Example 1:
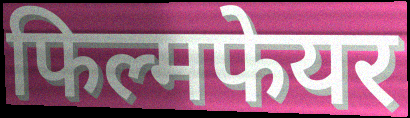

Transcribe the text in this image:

फिल्मफेयर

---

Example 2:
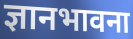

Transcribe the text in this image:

ज्ञानभावना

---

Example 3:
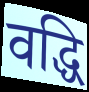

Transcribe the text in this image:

वद्धि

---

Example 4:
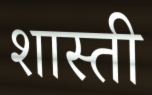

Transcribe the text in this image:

शास्ती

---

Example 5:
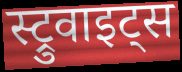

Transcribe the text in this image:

स्ट्रुवाइट्स